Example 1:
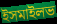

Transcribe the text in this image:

ইসমাইলভ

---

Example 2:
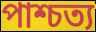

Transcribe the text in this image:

পাশ্চত্য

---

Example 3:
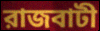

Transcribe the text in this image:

রাজবাটী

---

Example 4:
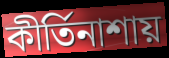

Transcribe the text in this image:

কীর্তিনাশায়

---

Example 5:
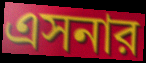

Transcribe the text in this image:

এসনার